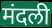
मंदली